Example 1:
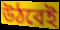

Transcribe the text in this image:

উঠবেই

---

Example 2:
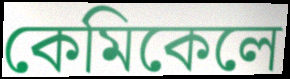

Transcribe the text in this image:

কেমিকেলে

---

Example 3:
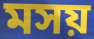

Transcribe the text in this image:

মসয়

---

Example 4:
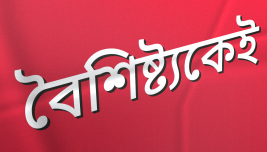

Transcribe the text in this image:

বৈশিষ্ট্যকেই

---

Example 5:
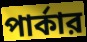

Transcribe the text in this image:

পার্কার